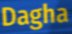
Dagha